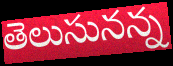
తెలుసునన్న